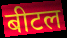
बीटल